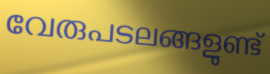
വേരുപടലങ്ങളുണ്ട്